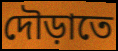
দৌড়াতে